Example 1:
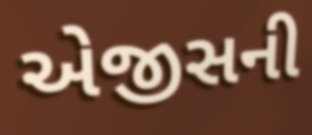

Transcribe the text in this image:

એજીસની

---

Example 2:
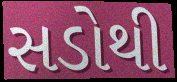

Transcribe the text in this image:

સડોથી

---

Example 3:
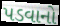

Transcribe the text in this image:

પડવાનો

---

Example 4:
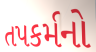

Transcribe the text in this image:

તપકર્મનો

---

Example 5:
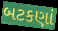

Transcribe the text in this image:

બટકણાં